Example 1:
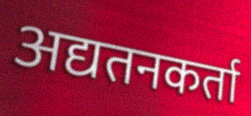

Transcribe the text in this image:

अद्यतनकर्ता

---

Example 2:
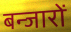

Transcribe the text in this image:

बन्जारों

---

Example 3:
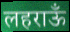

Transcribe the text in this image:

लहराऊँ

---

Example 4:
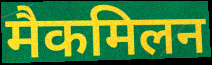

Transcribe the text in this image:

मैकमिलन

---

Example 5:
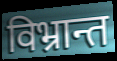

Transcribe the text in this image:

विभ्रान्त